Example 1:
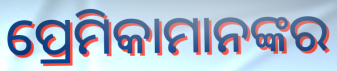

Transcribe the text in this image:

ପ୍ରେମିକାମାନଙ୍କର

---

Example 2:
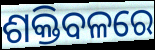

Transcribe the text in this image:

ଶକ୍ତିବଳରେ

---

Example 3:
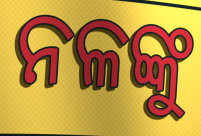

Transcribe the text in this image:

ନଳଙ୍କୁ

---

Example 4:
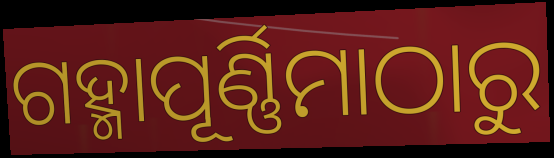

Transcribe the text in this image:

ଗହ୍ମାପୂର୍ଣ୍ଣିମାଠାରୁ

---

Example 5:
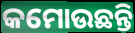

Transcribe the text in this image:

କମୋଉଛନ୍ତି